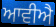
ਆਵੀਐ